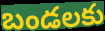
బండలకు